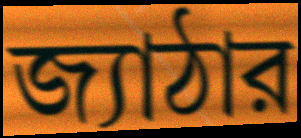
জ্যাঠার